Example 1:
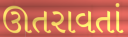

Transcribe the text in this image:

ઊતરાવતાં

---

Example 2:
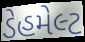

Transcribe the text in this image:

ડેહમેલ્ટ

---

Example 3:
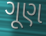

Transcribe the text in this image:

ગૂણ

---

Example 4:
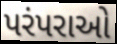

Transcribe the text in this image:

પરંપરાઓ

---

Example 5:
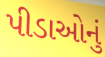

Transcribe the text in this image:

પીડાઓનું